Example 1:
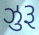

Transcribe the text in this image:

ઝુરૂ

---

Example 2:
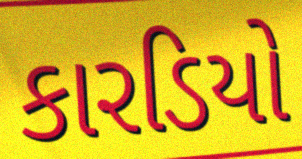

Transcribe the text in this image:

કારડિયો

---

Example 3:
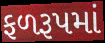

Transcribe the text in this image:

ફળરૂપમાં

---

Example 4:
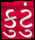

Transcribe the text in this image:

કુટું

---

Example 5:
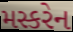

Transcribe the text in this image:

મસ્કરેન